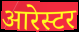
आरेस्टर